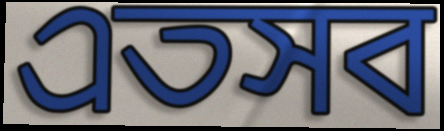
এতসব